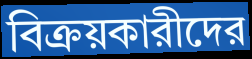
বিক্রয়কারীদের